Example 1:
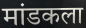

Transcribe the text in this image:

मांडकला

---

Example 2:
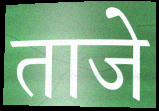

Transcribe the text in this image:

ताजे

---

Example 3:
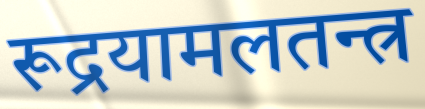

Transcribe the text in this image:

रूद्रयामलतन्त्र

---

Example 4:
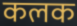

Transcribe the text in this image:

कलक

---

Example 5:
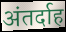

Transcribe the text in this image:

अंतर्दाह